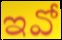
ఇవో